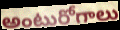
అంటురోగాలు